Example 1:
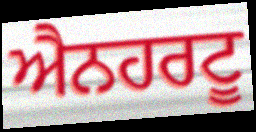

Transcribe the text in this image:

ਐਨਹਰਟੂ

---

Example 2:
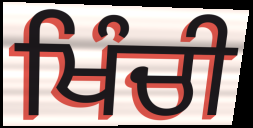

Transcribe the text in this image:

ਖਿੰਚੀ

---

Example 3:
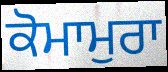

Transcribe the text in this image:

ਕੋਮਾਮੁਰਾ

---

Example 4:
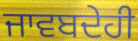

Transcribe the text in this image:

ਜਾਵਬਦੇਹੀ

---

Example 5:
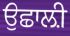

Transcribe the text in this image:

ਉਛਾਲ਼ੀ